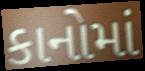
કાનોમાં